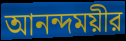
আনন্দময়ীর